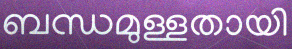
ബന്ധമുള്ളതായി